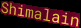
Shimalain